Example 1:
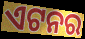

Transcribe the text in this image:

ଏଟନର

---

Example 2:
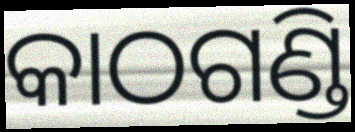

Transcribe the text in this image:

କାଠଗଣ୍ଡି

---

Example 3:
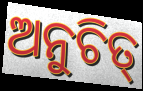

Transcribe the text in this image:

ଅନୁଚିତ୍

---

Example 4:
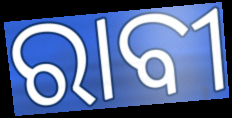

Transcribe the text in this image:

ରାବୀ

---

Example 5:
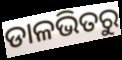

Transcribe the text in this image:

ଡାଳଭିତରୁ